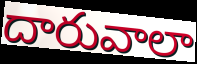
దారువాలా